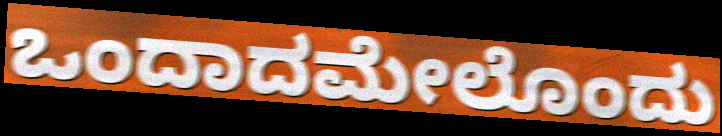
ಒಂದಾದಮೇಲೊಂದು